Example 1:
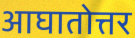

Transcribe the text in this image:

आघातोत्तर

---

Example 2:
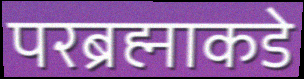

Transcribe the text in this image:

परब्रह्माकडे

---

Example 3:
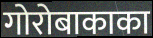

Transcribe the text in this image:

गोरोबाकाका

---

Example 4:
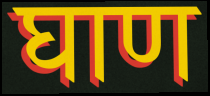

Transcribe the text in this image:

घाण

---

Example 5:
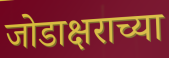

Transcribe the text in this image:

जोडाक्षराच्या